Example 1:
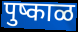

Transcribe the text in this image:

पुष्काळ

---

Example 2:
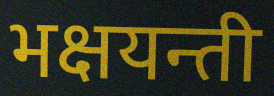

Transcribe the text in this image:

भक्षयन्ती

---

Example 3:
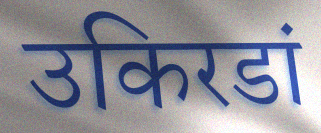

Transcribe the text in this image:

उकिरडां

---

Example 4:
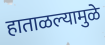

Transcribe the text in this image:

हाताळल्यामुळे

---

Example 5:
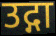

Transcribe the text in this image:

उद्गा